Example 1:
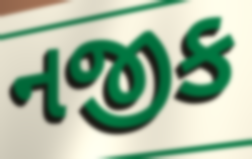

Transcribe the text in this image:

નજીક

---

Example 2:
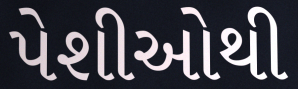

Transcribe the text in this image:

પેશીઓથી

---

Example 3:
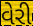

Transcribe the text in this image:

વેરી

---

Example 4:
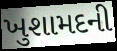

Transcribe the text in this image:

ખુશામદની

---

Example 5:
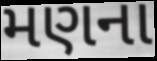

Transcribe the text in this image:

મણના